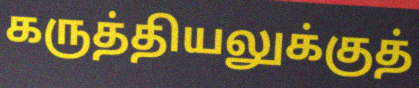
கருத்தியலுக்குத்